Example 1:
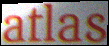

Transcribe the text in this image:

atlas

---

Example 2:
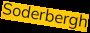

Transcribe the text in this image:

Soderbergh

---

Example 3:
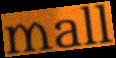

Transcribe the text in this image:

mall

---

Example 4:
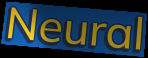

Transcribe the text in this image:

Neural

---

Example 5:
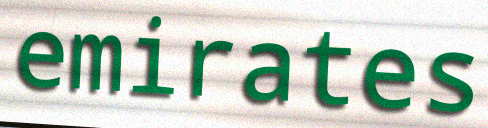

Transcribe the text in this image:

emirates